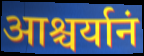
आश्चर्यानं